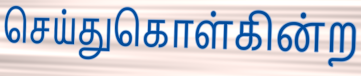
செய்துகொள்கின்ற